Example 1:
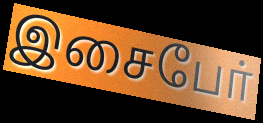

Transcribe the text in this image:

இசைபேர்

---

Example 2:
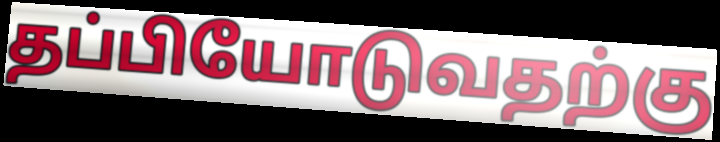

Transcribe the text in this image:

தப்பியோடுவதற்கு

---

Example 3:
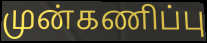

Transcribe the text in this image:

முன்கணிப்பு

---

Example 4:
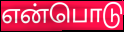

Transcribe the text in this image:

என்பொடு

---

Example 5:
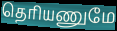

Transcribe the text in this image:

தெரியணுமே